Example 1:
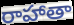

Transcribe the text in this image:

రాహాతా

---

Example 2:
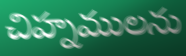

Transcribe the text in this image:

చిహ్నములను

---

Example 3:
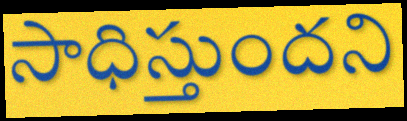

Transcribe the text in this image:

సాధిస్తుందని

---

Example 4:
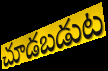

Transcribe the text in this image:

చూడబడుట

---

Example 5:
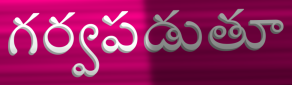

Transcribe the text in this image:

గర్వపడుతూ